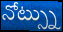
నోట్స్ను